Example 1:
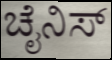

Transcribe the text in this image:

ಚೈನಿಸ್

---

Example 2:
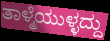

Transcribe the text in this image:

ತಾಳ್ಮೆಯುಳ್ಳದ್ದು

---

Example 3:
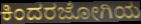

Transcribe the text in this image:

ಕಿಂದರಜೋಗಿಯ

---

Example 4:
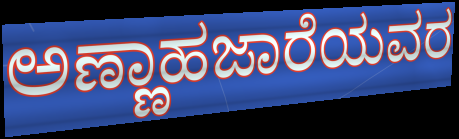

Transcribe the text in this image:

ಅಣ್ಣಾಹಜಾರೆಯವರ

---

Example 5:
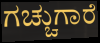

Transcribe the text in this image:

ಗಚ್ಚುಗಾರೆ